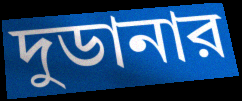
দুডানার